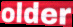
older